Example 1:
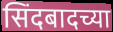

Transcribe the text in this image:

सिंदबादच्या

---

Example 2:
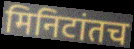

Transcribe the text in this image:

मिनिटांतच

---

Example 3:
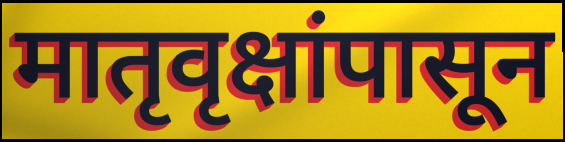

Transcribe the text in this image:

मातृवृक्षांपासून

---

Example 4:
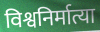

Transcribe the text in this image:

विश्वनिर्मात्या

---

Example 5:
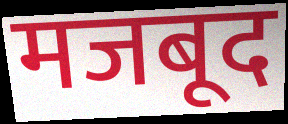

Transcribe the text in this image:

मजबूद